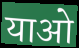
याओ